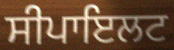
ਸੀਪਾਇਲਟ